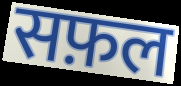
सफ़ल